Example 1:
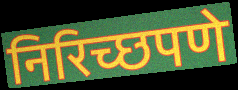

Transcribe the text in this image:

निरिच्छपणे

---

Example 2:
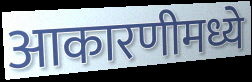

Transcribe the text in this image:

आकारणीमध्ये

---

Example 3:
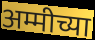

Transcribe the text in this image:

अम्मीच्या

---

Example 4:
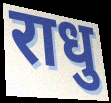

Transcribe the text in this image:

राधु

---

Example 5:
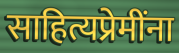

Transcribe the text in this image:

साहित्यप्रेमींना